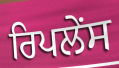
ਰਿਪਲੇਂਸ